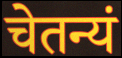
चेतन्यं